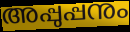
അപ്പുപ്പനും